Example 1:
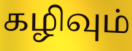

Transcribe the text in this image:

கழிவும்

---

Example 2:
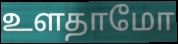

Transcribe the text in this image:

உளதாமோ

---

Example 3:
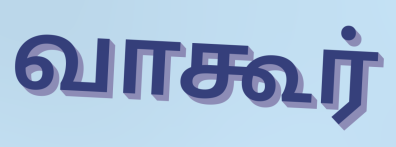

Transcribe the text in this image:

வாகூர்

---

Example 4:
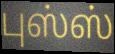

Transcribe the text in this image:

புஸ்ஸ்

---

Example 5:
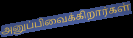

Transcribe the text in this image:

அனுப்பிவைக்கிறார்கள்